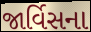
જાર્વિસના